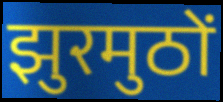
झुरमुठों